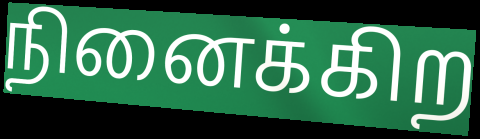
நினைக்கிற